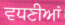
ਵਧਣੀਆਂ